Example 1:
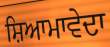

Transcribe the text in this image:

ਸ਼ਿਆਮਾਵੇਦਾ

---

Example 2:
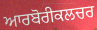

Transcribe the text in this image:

ਆਰਬੋਰੀਕਲਚਰ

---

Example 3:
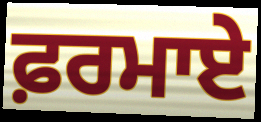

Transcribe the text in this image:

ਫ਼ਰਮਾਏ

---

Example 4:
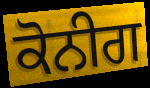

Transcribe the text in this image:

ਕੋਨੀਗ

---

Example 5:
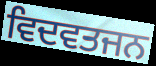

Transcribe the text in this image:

ਵਿਦਵਤਜਨ